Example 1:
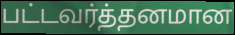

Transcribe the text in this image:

பட்டவர்த்தனமான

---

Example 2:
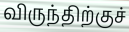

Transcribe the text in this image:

விருந்திற்குச்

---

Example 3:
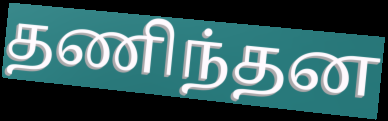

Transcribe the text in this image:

தணிந்தன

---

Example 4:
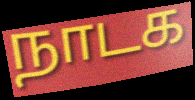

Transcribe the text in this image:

நாடக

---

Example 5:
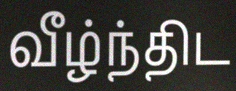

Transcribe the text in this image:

வீழ்ந்திட